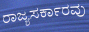
ರಾಜ್ಯಸರ್ಕಾರವು